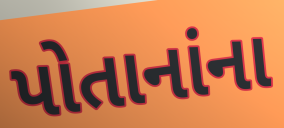
પોતાનાંના